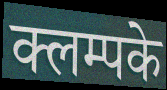
क्लम्पके